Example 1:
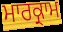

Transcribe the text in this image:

ਮਾਰਕ੍ਰਾਮ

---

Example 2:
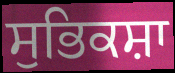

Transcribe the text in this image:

ਸੁਭਿਕਸ਼ਾ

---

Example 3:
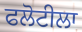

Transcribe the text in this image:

ਫਲੋਟੀਲਾ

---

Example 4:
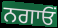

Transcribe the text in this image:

ਨਗਾਓਂ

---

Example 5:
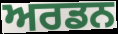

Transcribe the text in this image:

ਅਰਡਨ